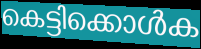
കെട്ടിക്കൊൾക